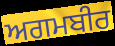
ਅਗਮਬੀਰ